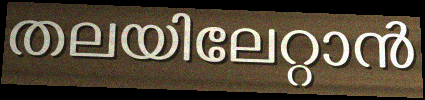
തലയിലേറ്റാൻ